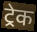
ट्रेक